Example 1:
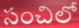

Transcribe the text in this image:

సంచిలో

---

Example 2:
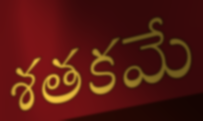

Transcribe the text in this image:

శతకమే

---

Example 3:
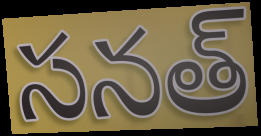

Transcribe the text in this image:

సనత్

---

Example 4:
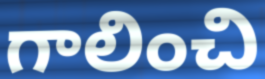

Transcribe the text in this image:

గాలించి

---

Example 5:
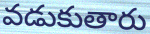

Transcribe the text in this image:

వడుకుతారు